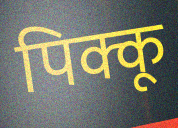
पिक्कू